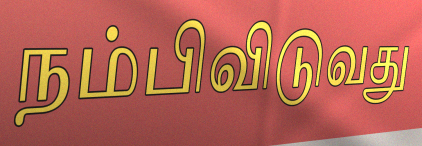
நம்பிவிடுவது